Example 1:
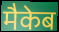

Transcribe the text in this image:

मैकेब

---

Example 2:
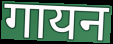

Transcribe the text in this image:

गायन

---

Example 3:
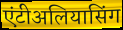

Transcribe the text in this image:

एंटीअलियासिंग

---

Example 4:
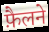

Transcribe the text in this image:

फ़ैलने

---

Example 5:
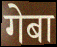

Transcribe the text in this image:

गेबा